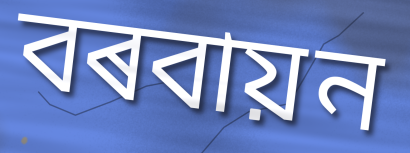
বৰবায়ন